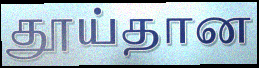
தூய்தான